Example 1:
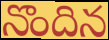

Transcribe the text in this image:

నొందిన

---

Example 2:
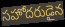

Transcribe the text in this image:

సహోదరుడైన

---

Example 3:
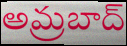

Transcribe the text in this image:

అమ్రబాద్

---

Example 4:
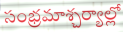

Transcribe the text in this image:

సంభ్రమాశ్చర్యాల్లో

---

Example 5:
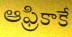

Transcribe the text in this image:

ఆఫ్రికాకే